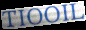
TIOOIL